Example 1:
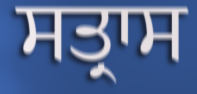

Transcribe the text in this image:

ਸਤ੍ਰਾਸ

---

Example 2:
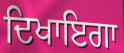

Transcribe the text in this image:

ਦਿਖਾਇਗਾ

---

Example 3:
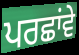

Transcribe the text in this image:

ਪਰਛਾਂਵੇ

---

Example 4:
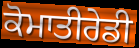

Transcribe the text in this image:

ਕੋਮਾਤੀਰੇਡੀ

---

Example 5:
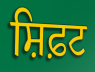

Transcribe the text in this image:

ਸ਼ਿਫ਼ਟ